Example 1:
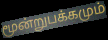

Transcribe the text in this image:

மூன்றுபக்கமும்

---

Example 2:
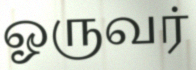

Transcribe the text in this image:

ஓருவர்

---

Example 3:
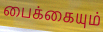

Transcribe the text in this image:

பைக்கையும்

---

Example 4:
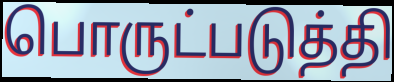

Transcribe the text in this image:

பொருட்படுத்தி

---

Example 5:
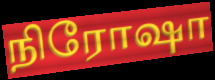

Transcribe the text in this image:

நிரோஷா